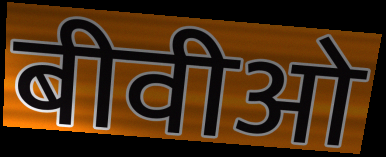
बीवीओ